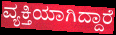
ವ್ಯಕ್ತಿಯಾಗಿದ್ದಾರೆ